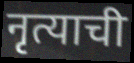
नृत्याची